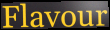
Flavour